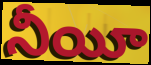
నీయీ